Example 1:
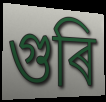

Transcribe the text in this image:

গুৰি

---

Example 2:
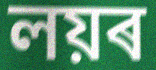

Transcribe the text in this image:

লয়ৰ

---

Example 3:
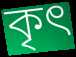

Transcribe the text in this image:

কৃৎ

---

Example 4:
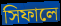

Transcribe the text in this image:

সিফালে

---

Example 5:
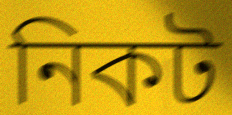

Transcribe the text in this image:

নিকট